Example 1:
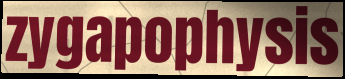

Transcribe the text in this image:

zygapophysis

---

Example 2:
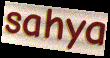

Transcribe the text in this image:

sahya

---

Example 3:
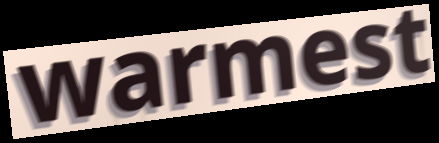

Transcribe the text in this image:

warmest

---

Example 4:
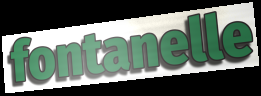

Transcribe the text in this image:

fontanelle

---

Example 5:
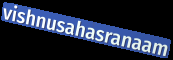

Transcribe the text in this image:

vishnusahasranaam